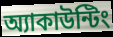
অ্যাকাউন্টিং